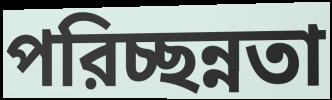
পরিচ্ছন্নতা